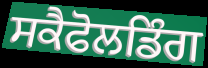
ਸਕੈਫੋਲਡਿੰਗ